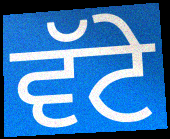
ਵੱਟੇ